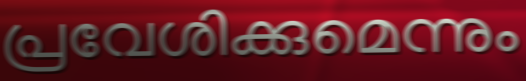
പ്രവേശിക്കുമെന്നും